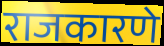
राजकारणे